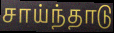
சாய்ந்தாடு